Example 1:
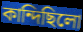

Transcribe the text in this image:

কান্দিছিলো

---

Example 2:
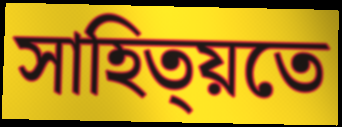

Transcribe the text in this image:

সাহিত্য়তে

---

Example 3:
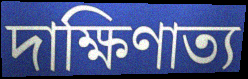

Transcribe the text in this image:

দাক্ষিণাত্য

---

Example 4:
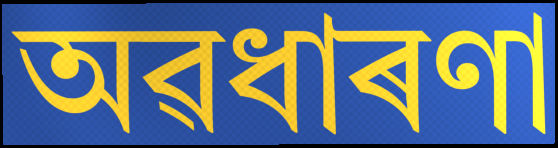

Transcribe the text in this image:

অৱধাৰণা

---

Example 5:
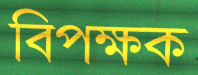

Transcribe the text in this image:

বিপক্ষক